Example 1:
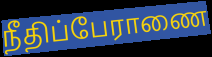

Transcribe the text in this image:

நீதிப்பேராணை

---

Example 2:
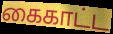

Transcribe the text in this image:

கைகாட்ட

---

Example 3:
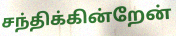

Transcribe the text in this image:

சந்திக்கின்றேன்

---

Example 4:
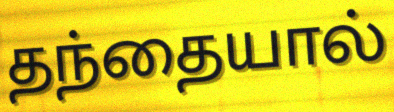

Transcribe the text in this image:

தந்தையால்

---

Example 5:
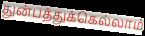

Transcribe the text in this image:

துன்பத்துக்கெல்லாம்